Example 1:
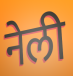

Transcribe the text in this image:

नेली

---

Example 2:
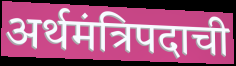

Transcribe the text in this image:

अर्थमंत्रिपदाची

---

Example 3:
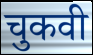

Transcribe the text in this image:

चुकवी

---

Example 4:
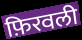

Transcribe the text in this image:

फ़िरवली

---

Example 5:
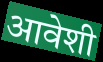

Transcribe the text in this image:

आवेशी